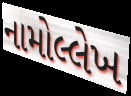
નામોલ્લેખ